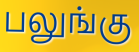
பலுங்கு